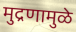
मुद्रणामुळे